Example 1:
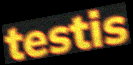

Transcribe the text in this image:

testis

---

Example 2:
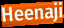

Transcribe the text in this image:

Heenaji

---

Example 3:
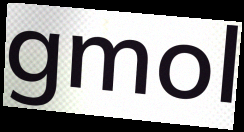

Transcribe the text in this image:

gmol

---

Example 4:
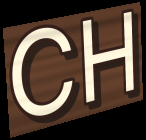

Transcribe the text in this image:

CH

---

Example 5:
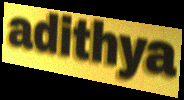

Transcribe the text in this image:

adithya